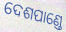
ଦେଶପାଣ୍ଡେ